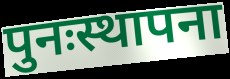
पुनःस्थापना